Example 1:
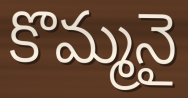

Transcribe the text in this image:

కొమ్మనై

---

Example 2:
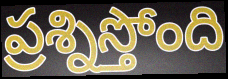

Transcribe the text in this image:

ప్రశ్నిస్తోంది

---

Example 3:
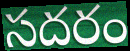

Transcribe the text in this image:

సదరం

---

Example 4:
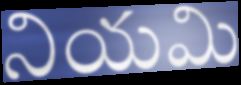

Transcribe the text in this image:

నియమి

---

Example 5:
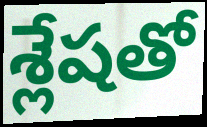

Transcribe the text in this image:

శ్లేషతో